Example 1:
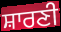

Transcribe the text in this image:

ਸ਼ਾਰਣੀ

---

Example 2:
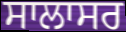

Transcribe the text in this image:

ਸਾਲਾਸਰ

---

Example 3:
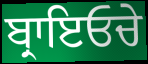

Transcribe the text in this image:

ਬ੍ਰਾਇਓਚੇ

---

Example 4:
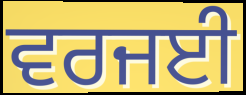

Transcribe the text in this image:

ਵਰਜਈ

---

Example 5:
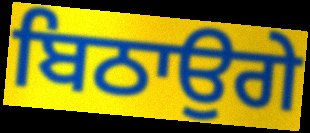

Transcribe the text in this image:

ਬਿਠਾਉਗੇ